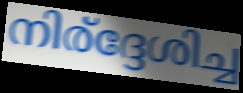
നിര്ദ്ദേശിച്ച